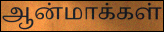
ஆன்மாக்கள்